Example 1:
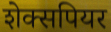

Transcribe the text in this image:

शेक्सपियर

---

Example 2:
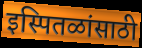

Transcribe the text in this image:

इस्पितळांसाठी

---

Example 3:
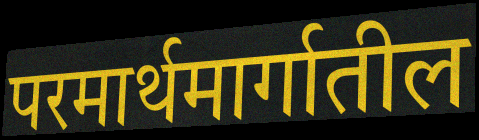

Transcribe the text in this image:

परमार्थमार्गातील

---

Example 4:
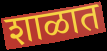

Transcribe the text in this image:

शाळात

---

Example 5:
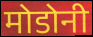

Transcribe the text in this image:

मोडोनी